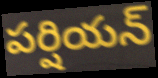
పర్షియన్